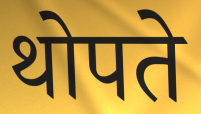
थोपते